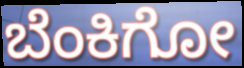
ಬೆಂಕಿಗೋ